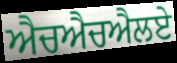
ਐਚਐਚਐਲਏ